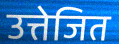
उत्तेजित